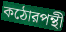
কঠোরপন্থী